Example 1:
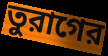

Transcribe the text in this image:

তুরাগের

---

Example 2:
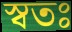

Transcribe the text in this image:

স্বতঃ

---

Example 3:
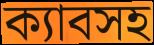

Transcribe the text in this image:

ক্যাবসহ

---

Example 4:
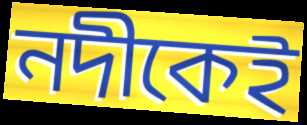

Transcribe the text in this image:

নদীকেই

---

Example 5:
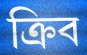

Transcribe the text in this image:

ক্রিব